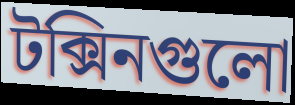
টক্সিনগুলো